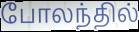
போலந்தில்